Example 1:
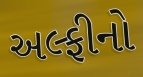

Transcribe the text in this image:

અલ્ફીનો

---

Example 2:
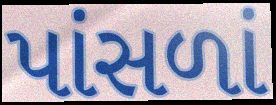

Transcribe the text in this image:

પાંસળાં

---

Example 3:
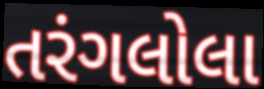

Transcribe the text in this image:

તરંગલોલા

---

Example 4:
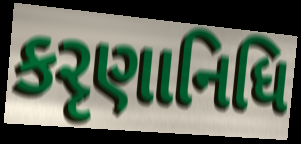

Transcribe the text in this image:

કરૃણાનિધિ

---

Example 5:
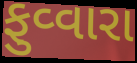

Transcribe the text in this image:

ફુવ્વારા